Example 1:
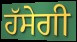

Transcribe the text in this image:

ਹੱਸੇਗੀ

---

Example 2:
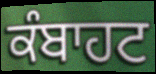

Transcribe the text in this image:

ਕੰਬਾਹਟ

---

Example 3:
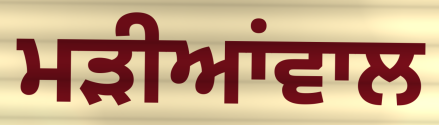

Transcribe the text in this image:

ਮੜੀਆਂਵਾਲ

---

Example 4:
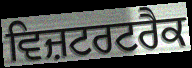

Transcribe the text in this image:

ਵਿਜ਼ਟਰਟਰੈਕ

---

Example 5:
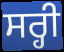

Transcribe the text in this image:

ਸਰ੍ਹੀ